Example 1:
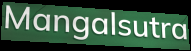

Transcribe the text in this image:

Mangalsutra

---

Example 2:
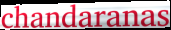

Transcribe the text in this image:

chandaranas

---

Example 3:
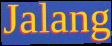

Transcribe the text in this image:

Jalang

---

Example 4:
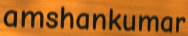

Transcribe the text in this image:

amshankumar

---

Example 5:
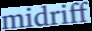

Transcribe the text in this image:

midriff